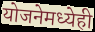
योजनेमध्येही